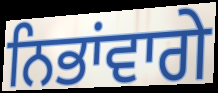
ਨਿਭਾਂਵਾਗੇ